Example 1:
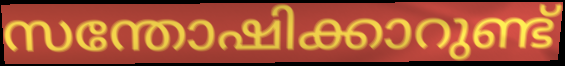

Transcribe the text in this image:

സന്തോഷിക്കാറുണ്ട്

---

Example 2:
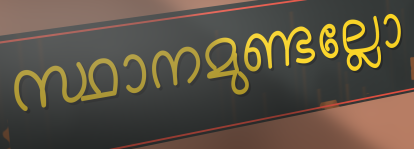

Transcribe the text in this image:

സ്ഥാനമുണ്ടല്ലോ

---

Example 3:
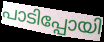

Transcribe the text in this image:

പാടിപ്പോയി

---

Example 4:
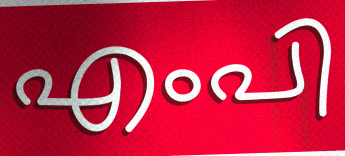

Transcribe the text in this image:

എംപി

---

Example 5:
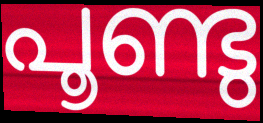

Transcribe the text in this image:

പൂണ്ടു